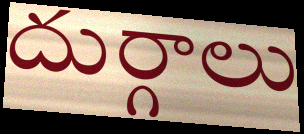
దుర్గాలు